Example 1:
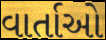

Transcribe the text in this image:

વાર્તાઓ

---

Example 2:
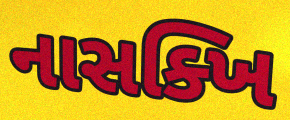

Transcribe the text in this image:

નાસક્ખિ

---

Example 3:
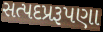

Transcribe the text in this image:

સત્પદપ્રરૂપણા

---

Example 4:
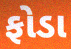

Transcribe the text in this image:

ફોડા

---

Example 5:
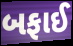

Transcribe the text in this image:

બફાઈ